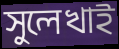
সুলেখাই